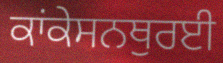
ਕਾਂਕੇਸਨਥੁਰਈ